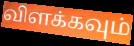
விளக்கவும்